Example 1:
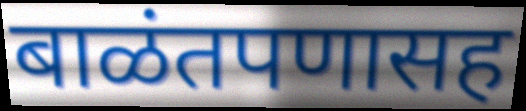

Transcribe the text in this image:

बाळंतपणासह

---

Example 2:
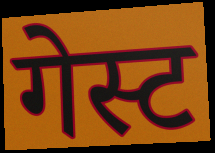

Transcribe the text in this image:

गेस्ट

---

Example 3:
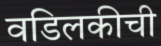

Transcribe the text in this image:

वडिलकीची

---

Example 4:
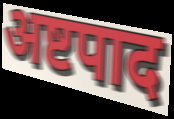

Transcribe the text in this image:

अष्टपाद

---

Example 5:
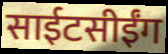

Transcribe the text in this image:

साईटसीईंग